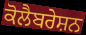
ਕੋਲੈਬਰੇਸ਼ਨ